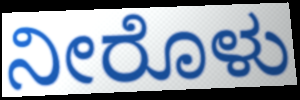
ನೀರೊಳು